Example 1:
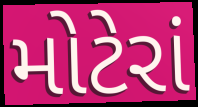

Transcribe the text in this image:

મોટેરાં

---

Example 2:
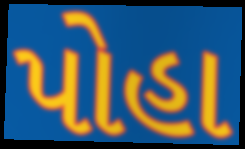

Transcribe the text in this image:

પોહા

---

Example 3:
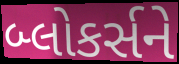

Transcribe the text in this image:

બ્લોકર્સને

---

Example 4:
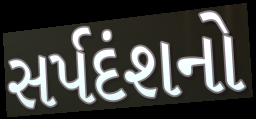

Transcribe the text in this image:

સર્પદંશનો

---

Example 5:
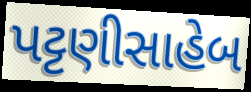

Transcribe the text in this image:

પટ્ટણીસાહેબ